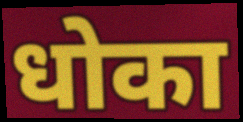
धोका